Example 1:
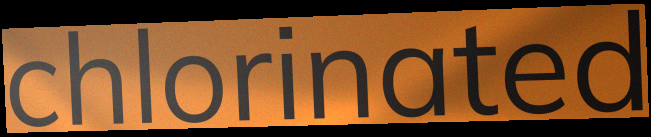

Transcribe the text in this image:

chlorinated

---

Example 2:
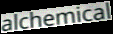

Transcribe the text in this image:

alchemical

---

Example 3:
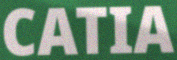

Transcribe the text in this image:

CATIA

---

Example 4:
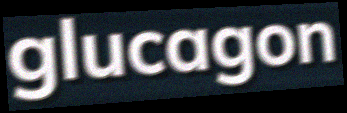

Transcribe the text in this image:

glucagon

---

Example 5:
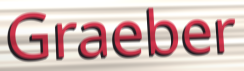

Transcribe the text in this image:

Graeber